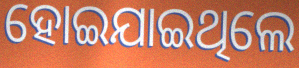
ହୋଇଯାଇଥିଲେ